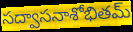
సద్వాసనాశోభితమ్